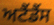
ਅਟੈਂਡੈਂਸ